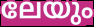
ലേയും